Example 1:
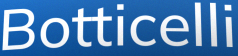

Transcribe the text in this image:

Botticelli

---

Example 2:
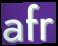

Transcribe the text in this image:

afr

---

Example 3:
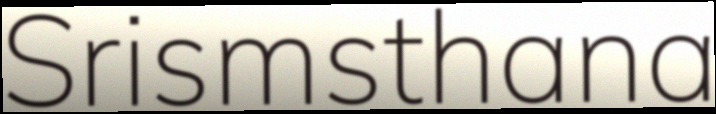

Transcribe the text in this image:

Srismsthana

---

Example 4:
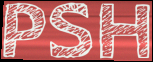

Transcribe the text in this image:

PSH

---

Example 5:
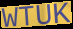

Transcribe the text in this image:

WTUK